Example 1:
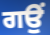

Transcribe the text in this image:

ਗਉਂ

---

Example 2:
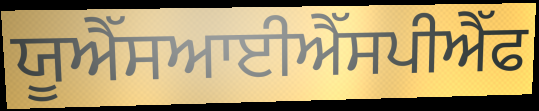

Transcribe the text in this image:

ਯੂਐੱਸਆਈਐੱਸਪੀਐੱਫ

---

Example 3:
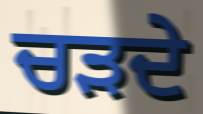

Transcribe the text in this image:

ਚੜਦੇ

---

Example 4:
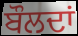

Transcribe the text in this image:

ਬੌਲਦਾਂ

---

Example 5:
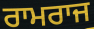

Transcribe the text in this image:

ਰਾਮਰਾਜ